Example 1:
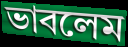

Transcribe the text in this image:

ভাবলেম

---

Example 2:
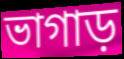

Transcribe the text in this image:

ভাগাড়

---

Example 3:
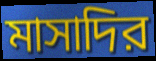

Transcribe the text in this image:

মাসাদির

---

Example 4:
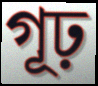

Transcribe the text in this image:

গূঢ়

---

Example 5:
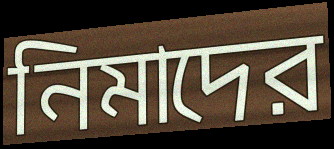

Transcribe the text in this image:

নিমাদের